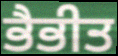
ਭੈਭੀਤ